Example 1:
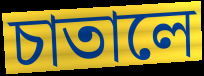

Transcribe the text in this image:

চাতালে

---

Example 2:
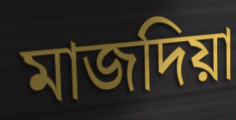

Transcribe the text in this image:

মাজদিয়া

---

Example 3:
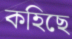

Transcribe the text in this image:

কহিছে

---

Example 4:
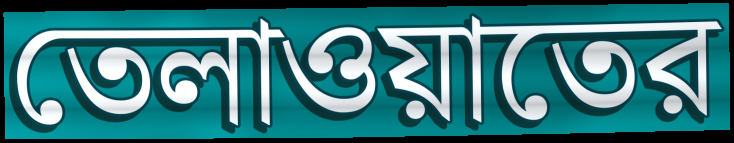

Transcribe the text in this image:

তেলাওয়াতের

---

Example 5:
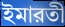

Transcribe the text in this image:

ইমারতী